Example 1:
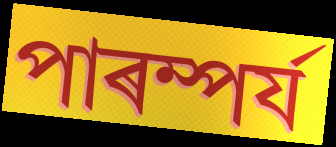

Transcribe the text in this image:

পাৰম্পৰ্য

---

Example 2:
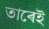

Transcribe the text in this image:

তাৰেই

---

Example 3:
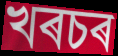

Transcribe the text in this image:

খৰচৰ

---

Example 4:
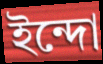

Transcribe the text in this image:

ইন্দো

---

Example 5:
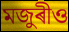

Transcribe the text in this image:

মজুৰীও